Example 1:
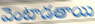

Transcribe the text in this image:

వెంటాడతాయి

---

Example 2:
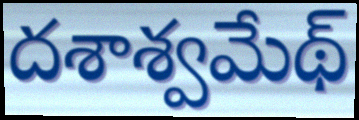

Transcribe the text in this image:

దశాశ్వమేథ్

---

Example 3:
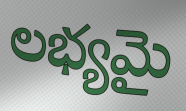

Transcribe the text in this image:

లభ్యమై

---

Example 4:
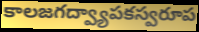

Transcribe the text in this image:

కాలజగద్వ్యాపకస్వరూప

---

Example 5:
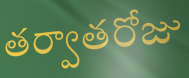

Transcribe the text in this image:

తర్వాతరోజు